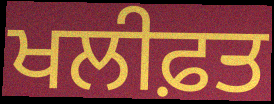
ਖਲੀਫ਼ਤ